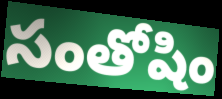
సంతోషిం